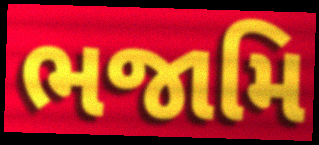
ભજામિ